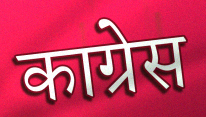
काग्रेस